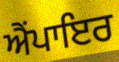
ਐਂਪਾਇਰ